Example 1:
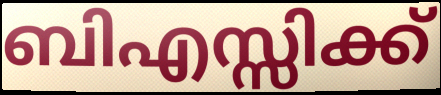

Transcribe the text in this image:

ബിഎസ്സിക്ക്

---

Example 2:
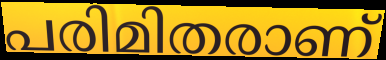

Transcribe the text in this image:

പരിമിതരാണ്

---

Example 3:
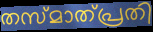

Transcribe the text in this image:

തസ്മാത്പ്രതി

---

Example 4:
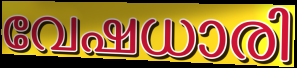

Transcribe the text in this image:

വേഷധാരി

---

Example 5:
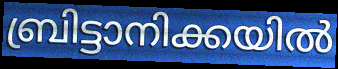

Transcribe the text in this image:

ബ്രിട്ടാനിക്കയിൽ